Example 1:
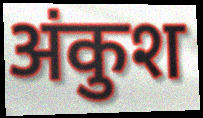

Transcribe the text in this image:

अंकुश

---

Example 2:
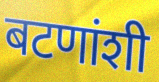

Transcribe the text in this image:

बटणांशी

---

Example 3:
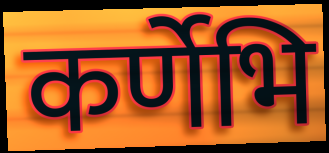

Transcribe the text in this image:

कर्णेभि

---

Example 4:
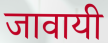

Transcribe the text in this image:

जावायी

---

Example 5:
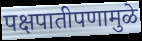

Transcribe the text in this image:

पक्षपातीपणामुळे